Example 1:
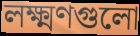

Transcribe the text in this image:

লক্ষ্মণগুলো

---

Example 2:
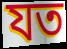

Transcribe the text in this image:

যত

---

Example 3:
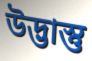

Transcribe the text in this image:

উদ্ভাস্তু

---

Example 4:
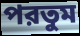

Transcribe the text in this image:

পরতুম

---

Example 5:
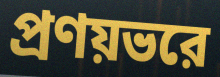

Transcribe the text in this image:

প্রণয়ভরে